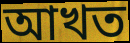
আখত